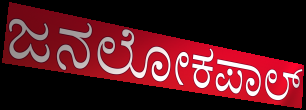
ಜನಲೋಕಪಾಲ್